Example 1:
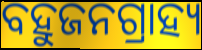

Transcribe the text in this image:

ବହୁଜନଗ୍ରାହ୍ୟ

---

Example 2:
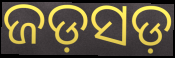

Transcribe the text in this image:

ଜଡ଼ସଡ଼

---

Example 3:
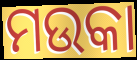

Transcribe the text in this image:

ମଉକା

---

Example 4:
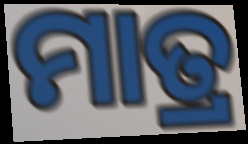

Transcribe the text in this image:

ମାତ୍ର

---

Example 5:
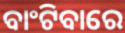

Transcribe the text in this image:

ବାଂଟିବାରେ